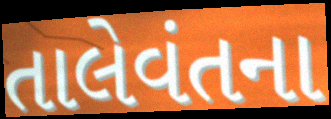
તાલેવંતના